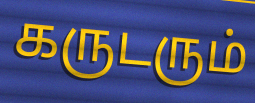
கருடரும்